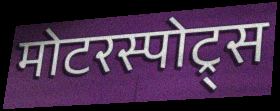
मोटरस्पोट्र्स